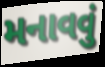
મનાવવું